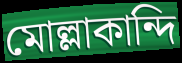
মোল্লাকান্দি